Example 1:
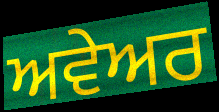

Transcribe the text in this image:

ਅਵੇਅਰ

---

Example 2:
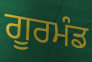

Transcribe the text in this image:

ਗੂਰਮੰਡ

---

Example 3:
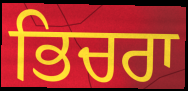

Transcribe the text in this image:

ਭਿਚਰਾ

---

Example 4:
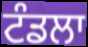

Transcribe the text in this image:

ਟੰਡਲਾ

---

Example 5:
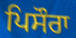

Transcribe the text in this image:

ਪਿਸੌਰਾ